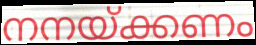
നനയ്ക്കണം